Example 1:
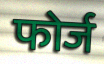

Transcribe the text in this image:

फोर्ज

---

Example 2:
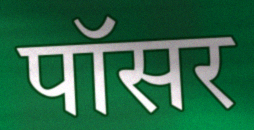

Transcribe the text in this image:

पॉसर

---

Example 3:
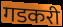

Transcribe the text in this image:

गडकरी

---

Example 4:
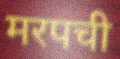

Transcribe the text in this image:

मरपची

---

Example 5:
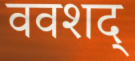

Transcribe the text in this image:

ववशद्